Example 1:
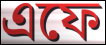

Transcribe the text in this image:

এফে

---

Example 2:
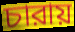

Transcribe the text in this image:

চারায়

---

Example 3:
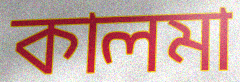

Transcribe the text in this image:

কালমা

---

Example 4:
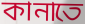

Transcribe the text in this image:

কানাতে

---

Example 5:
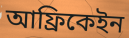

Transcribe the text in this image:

আফ্রিকেইন